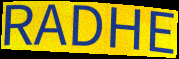
RADHE